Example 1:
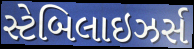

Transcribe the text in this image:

સ્ટેબિલાઇઝર્સ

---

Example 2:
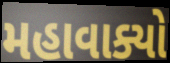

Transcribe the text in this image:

મહાવાક્યો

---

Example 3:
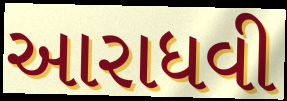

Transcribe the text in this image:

આરાધવી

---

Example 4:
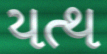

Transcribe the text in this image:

યત્થ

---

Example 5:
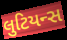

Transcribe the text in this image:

લુટિયન્સ